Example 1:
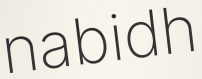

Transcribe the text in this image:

nabidh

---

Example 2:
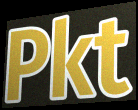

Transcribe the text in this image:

Pkt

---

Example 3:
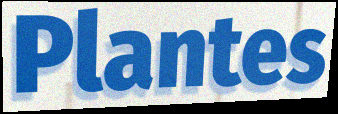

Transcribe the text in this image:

Plantes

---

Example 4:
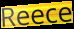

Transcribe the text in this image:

Reece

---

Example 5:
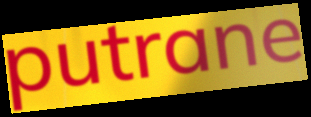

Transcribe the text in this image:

putrane